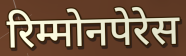
रिम्मोनपेरेस